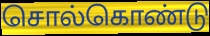
சொல்கொண்டு